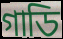
গাডি